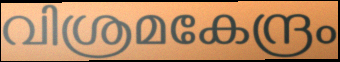
വിശ്രമകേന്ദ്രം